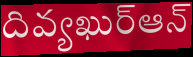
దివ్యఖుర్ఆన్